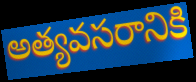
అత్యవసరానికి